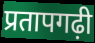
प्रतापगढ़ी